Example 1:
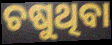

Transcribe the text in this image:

ଚଷୁଥିବା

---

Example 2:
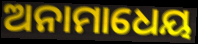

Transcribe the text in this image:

ଅନାମାଧେୟ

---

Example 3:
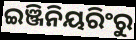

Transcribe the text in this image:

ଇଞ୍ଜିନିୟରିଂରୁ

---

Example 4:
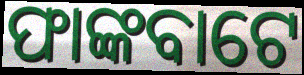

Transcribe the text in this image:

ଫାଙ୍କବାଟେ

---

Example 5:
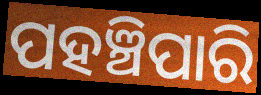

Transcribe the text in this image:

ପହଞ୍ଚିପାରି